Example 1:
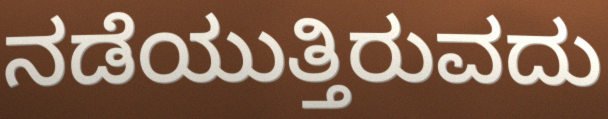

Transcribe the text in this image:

ನಡೆಯುತ್ತಿರುವದು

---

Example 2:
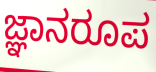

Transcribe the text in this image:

ಜ್ಞಾನರೂಪ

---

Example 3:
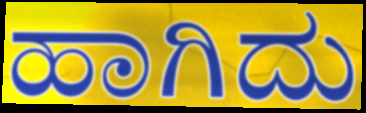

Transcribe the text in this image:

ಹಾಗಿದು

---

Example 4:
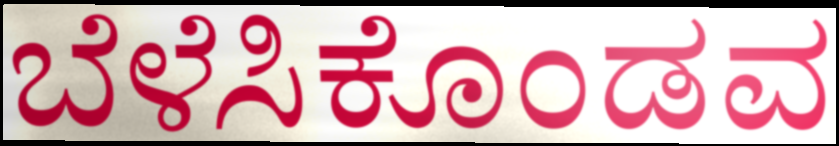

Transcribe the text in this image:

ಬೆಳೆಸಿಕೊಂಡವ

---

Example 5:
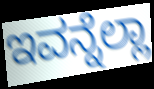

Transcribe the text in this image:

ಇವನ್ನೆಲ್ಲಾ